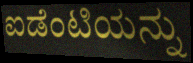
ಐಡೆಂಟಿಯನ್ನು